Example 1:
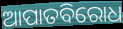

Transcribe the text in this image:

ଆପାତବିରୋଧ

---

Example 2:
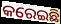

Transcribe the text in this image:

କରେଇଛି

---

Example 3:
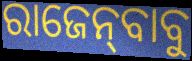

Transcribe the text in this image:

ରାଜେନ୍‌ବାବୁ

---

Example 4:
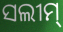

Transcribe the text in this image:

ସଲୀମ୍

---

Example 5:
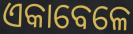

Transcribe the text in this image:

ଏକାବେଳେ